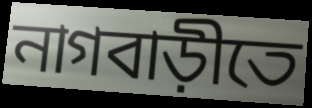
নাগবাড়ীতে